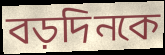
বড়দিনকে